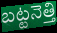
బట్టనెత్తి